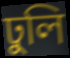
ঢুলি